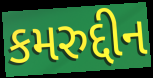
કમરુદ્દીન